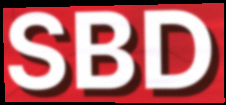
SBD